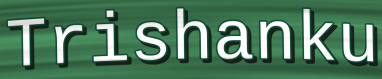
Trishanku